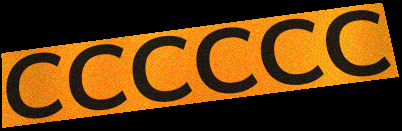
CCCCCC